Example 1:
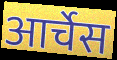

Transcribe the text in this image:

आर्चेस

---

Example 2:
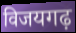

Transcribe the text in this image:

विजयगढ़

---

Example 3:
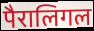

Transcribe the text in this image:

पैरालिगल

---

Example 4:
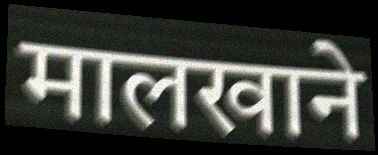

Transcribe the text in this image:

मालखाने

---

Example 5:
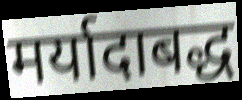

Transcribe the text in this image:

मर्यादाबद्ध